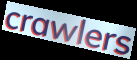
crawlers